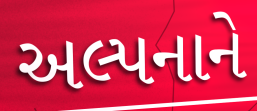
અલ્પનાને